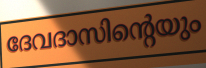
ദേവദാസിന്റെയും